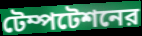
টেম্পটেশনের